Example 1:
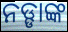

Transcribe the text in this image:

ନଡ୍ଡାଙ୍କ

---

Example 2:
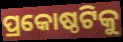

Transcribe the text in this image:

ପ୍ରକୋଷ୍ଠଟିକୁ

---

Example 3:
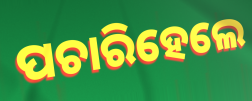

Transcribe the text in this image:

ପଚାରିହେଲେ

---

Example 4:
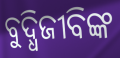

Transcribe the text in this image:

ବୁଦ୍ଧିଜୀବିଙ୍କ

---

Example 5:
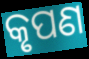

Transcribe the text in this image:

କୃପଣ